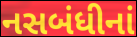
નસબંધીનાં